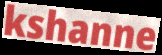
kshanne